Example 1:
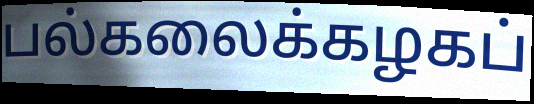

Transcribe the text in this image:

பல்கலைக்கழகப்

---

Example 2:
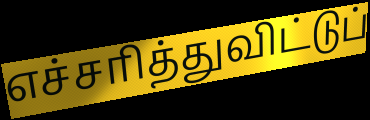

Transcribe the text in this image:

எச்சரித்துவிட்டுப்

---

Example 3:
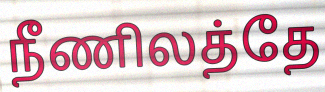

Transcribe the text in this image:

நீணிலத்தே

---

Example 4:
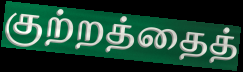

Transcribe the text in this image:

குற்றத்தைத்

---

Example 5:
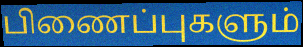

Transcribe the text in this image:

பிணைப்புகளும்